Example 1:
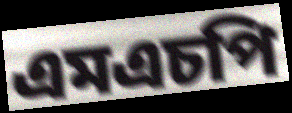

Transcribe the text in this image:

এমএচপি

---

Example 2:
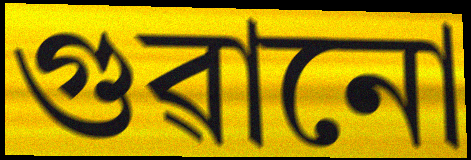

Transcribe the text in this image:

গুৱানো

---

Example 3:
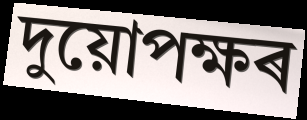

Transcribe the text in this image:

দুয়োপক্ষৰ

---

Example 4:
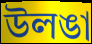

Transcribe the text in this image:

উলঙা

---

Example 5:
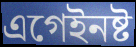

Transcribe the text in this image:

এগেইনষ্ট